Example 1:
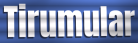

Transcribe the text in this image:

Tirumular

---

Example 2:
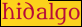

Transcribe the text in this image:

hidalgo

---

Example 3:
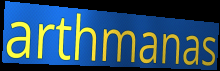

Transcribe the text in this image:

arthmanas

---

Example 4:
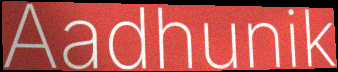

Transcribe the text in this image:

Aadhunik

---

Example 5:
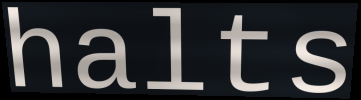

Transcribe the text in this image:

halts